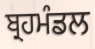
ਬ੍ਰਹਮੰਡਲ